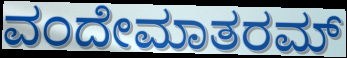
ವಂದೇಮಾತರಮ್